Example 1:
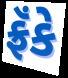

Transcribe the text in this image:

ફ્રૅંકે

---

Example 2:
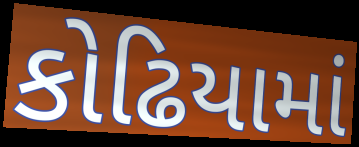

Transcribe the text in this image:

કોઢિયામાં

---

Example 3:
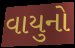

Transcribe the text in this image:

વાયુનો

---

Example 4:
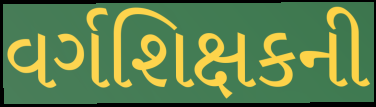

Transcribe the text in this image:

વર્ગશિક્ષકની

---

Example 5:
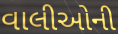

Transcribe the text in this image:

વાલીઓની